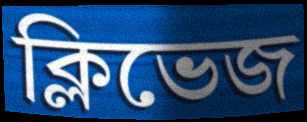
ক্লিভেজ